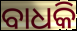
ବାଧକି